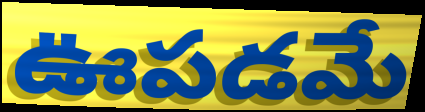
ఊపడమే